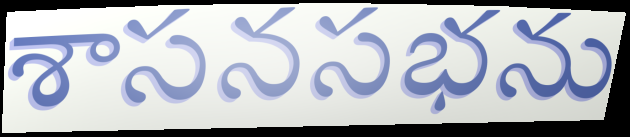
శాసనసభను